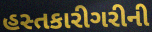
હસ્તકારીગરીની